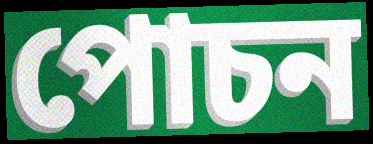
পোচন